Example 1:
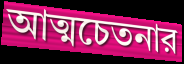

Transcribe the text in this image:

আত্মচেতনার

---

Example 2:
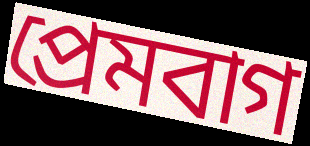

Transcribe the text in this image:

প্রেমবাগ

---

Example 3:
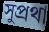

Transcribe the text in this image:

সুপ্রথা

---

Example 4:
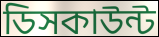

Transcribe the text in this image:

ডিসকাউন্ট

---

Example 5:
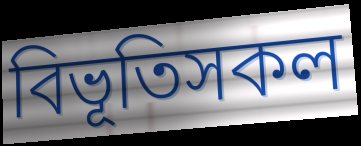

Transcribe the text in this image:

বিভূতিসকল